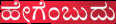
ಹೇಗೆಂಬುದು